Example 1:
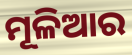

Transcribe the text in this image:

ମୂଳିଆର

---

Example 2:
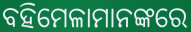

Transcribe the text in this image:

ବହିମେଳାମାନଙ୍କରେ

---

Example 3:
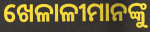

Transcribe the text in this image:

ଖେଳାଳୀମାନଙ୍କୁ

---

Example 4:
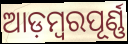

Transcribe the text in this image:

ଆଡ଼ମ୍ବରପୂର୍ଣ୍ଣ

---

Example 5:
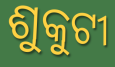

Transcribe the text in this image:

ଶୁକୁଟୀ